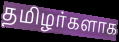
தமிழர்களாக